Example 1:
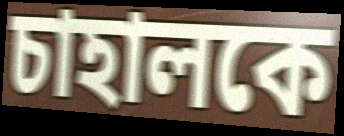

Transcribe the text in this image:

চাহালকে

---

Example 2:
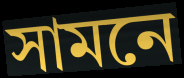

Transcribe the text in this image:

সামনে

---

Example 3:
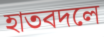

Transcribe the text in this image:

হাতবদলে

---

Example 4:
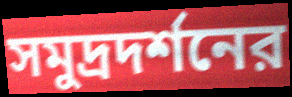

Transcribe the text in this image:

সমুদ্রদর্শনের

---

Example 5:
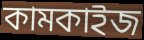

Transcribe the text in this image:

কামকাইজ